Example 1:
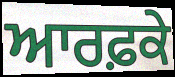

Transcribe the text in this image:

ਆਰਫ਼ਕੇ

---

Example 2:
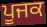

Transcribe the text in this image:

ਪੂਜਕ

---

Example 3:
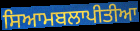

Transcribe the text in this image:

ਸਿਆਮਬਲਾਪੀਤੀਆ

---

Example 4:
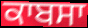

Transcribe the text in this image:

ਕਾਬਸਾ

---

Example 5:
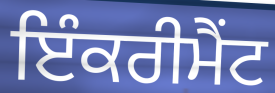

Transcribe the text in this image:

ਇੰਕਰੀਮੈਂਟ